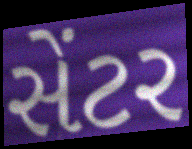
સેંટર